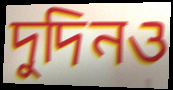
দুদিনও